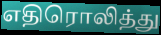
எதிரொலித்து